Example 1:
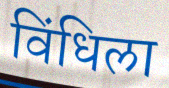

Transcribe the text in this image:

विंधिला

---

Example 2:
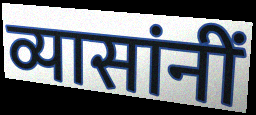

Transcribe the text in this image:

व्यासांनीं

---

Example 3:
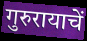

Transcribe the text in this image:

गुरुरायाचें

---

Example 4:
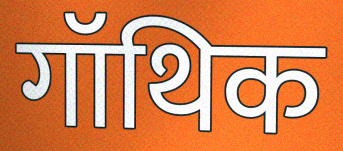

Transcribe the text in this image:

गॉथिक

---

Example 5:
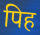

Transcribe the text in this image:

पिह